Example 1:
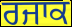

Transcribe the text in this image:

ਰਜਾਕ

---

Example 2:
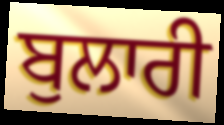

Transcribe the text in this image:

ਬੁਲਾਰੀ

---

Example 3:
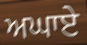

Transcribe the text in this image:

ਅਘਾਏ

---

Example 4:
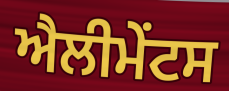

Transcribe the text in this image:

ਐਲੀਮੇੰਟਸ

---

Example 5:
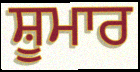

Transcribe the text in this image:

ਸ਼ੂਮਾਰ